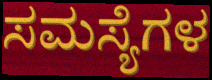
ಸಮಸ್ಯೆಗಳ